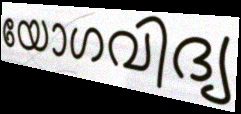
യോഗവിദ്യ